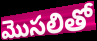
మొసలితో